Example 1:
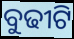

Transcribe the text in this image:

ବୁଢୀଟି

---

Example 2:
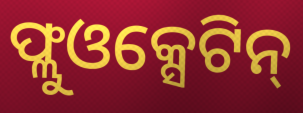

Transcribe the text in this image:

ଫ୍ଲୁଓକ୍ସେଟିନ୍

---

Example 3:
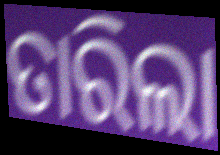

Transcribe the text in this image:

ତାରିଲା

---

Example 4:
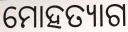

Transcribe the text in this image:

ମୋହତ୍ୟାଗ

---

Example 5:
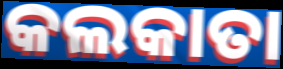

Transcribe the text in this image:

କଲକାତା